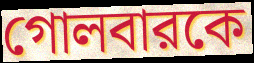
গোলবারকে